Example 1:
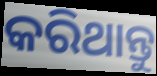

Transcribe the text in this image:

କରିଥାନ୍ତୁ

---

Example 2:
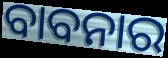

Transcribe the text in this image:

ବାବନାର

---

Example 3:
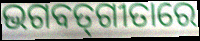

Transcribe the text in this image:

ଭଗବତ୍‌ଗୀତାରେ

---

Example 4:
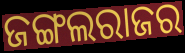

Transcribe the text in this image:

ଜଙ୍ଗଲରାଜର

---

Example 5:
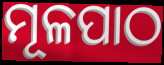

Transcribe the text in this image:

ମୂଳପାଠ